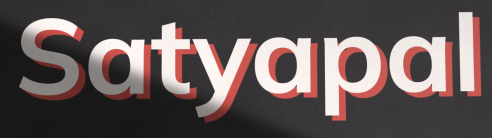
Satyapal